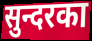
सुन्दरका